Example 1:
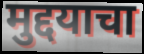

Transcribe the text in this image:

मुद्दयाचा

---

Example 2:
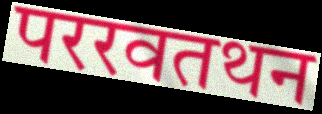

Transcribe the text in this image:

पररवतथन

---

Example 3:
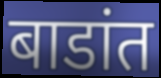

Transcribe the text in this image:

बाडांत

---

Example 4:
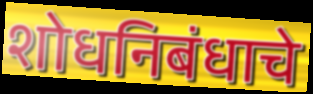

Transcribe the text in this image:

शोधनिबंधाचे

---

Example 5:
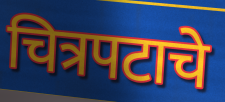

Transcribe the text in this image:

चित्रपटाचे